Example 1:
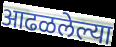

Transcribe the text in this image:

आढळलेल्या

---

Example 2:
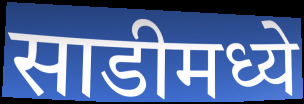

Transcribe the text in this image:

साडीमध्ये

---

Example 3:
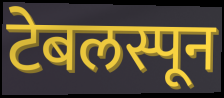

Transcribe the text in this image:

टेबलस्पून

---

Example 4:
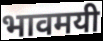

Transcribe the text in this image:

भावमयी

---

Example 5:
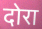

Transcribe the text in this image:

दोरा